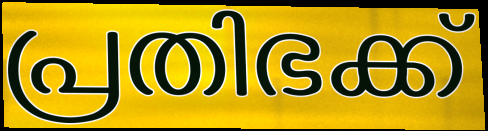
പ്രതിഭക്ക്